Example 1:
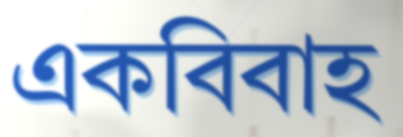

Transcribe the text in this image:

একবিবাহ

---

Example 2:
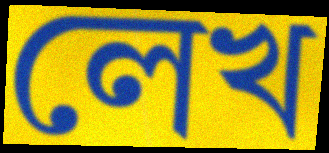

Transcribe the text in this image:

লেখ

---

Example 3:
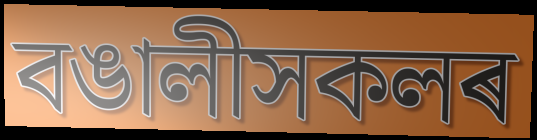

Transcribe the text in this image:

বঙালীসকলৰ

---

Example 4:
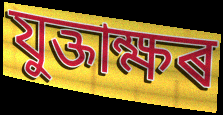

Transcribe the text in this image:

যুক্তাক্ষৰ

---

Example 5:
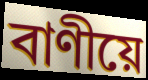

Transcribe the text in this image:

বাণীয়ে